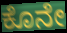
ಕೊನೇ